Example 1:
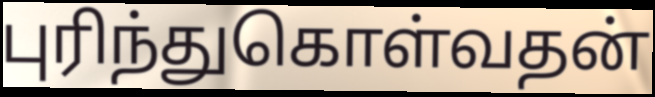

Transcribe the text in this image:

புரிந்துகொள்வதன்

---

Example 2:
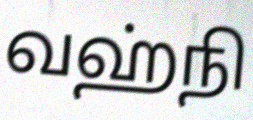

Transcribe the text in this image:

வஹ்நி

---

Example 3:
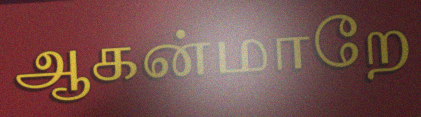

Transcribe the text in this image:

ஆகன்மாறே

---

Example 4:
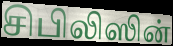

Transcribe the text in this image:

சிபிலிஸின்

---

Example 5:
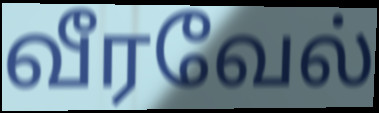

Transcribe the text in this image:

வீரவேல்